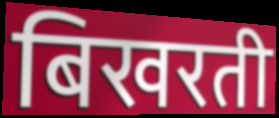
बिखरती